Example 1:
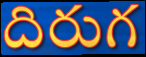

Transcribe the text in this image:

దిరుగ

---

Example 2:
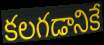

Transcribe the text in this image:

కలగడానికే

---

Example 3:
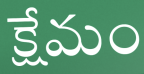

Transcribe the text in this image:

క్షేమం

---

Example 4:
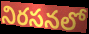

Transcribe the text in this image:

నిరసనలో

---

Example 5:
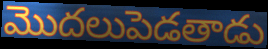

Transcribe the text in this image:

మొదలుపెడతాడు